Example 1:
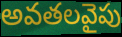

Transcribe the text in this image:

అవతలవైపు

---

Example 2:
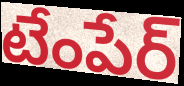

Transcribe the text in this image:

టేంపేర్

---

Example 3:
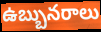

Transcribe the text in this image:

ఉబ్బునరాలు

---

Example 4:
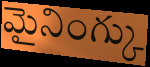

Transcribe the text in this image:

మైనింగ్కు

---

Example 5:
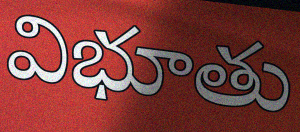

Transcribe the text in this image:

విభూతు